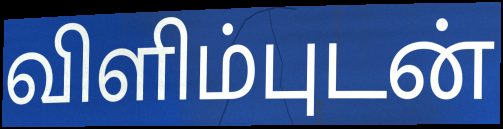
விளிம்புடன்